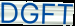
DGFT